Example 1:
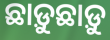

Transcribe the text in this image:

ଛାଡ଼ୁଛାଡ଼ୁ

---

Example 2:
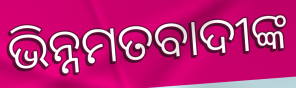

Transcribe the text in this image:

ଭିନ୍ନମତବାଦୀଙ୍କ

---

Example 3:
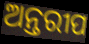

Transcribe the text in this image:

ଅନ୍ତରୀପ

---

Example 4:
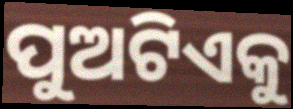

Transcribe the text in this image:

ପୁଅଟିଏକୁ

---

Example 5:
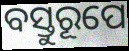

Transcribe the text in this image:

ବସ୍ତୁରୂପେ